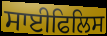
ਸਾਈਫਿਲਿਸ